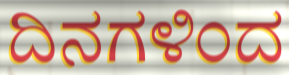
ದಿನಗಳಿಂದ